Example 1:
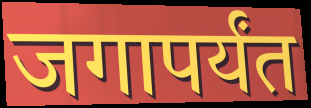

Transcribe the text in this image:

जगापर्यंत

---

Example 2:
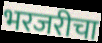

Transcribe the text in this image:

भरजरीचा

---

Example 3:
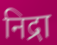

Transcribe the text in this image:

निद्रा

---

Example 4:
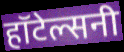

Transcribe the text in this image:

हॉटेल्सनी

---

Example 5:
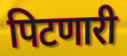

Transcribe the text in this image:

पिटणारी